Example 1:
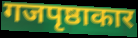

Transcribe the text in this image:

गजपृष्ठाकार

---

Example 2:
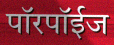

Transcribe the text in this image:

पॉरपॉईज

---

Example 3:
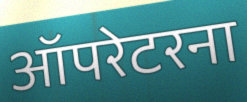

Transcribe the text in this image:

ऑपरेटरना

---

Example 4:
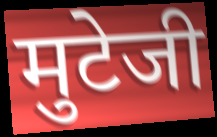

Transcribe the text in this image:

मुटेजी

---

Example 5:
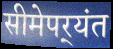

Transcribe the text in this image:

सीमेपर्यंत